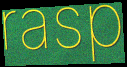
rasp